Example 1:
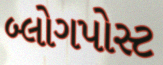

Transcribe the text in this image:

બ્લોગપોસ્ટ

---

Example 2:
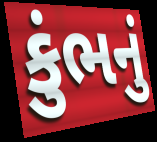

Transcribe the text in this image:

કુંભનું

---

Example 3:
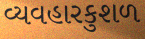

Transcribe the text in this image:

વ્યવહારકુશળ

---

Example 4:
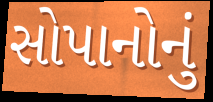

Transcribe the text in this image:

સોપાનોનું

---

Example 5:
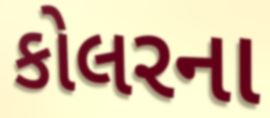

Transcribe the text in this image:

કોલરના